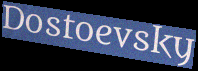
Dostoevsky